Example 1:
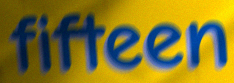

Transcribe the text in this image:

fifteen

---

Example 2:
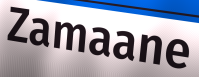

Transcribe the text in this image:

Zamaane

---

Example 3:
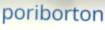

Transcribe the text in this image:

poriborton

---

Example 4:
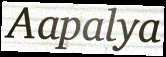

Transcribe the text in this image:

Aapalya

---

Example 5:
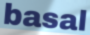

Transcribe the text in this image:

basal